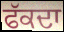
ਫੱਕਦਾ